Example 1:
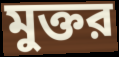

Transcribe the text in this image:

মুক্তর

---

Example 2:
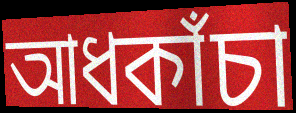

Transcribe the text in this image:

আধকাঁচা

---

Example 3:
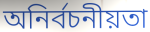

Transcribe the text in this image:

অনির্বচনীয়তা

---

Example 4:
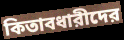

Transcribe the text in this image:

কিতাবধারীদের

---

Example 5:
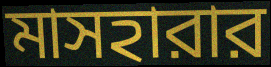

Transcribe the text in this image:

মাসহারার